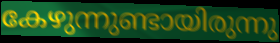
കേഴുന്നുണ്ടായിരുന്നു